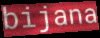
bijana